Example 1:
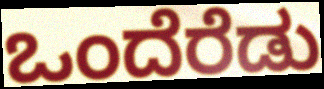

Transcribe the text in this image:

ಒಂದೆರೆಡು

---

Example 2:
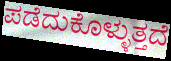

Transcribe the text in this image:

ಪಡೆದುಕೊಳ್ಳುತ್ತದೆ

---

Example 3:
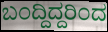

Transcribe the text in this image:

ಬಂದ್ದಿದ್ದರಿಂದ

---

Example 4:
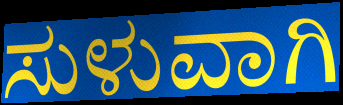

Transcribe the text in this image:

ಸುಳುವಾಗಿ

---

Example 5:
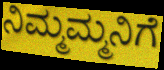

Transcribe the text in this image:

ನಿಮ್ಮಮ್ಮನಿಗೆ